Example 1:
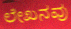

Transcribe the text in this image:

ಲೇಖನವು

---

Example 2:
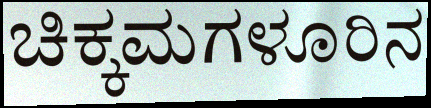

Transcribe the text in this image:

ಚಿಕ್ಕಮಗಳೂರಿನ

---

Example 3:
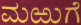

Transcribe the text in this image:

ಮಱುಗೆ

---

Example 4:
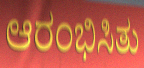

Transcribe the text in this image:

ಆರಂಭಿಸಿತು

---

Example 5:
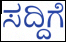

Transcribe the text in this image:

ಸದ್ದಿಗೆ